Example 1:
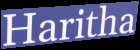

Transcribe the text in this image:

Haritha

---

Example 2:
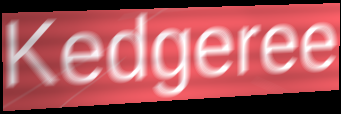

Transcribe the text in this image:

Kedgeree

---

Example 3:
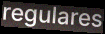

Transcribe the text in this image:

regulares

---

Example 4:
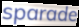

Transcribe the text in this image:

sparade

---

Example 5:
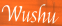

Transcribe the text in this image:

Wushu